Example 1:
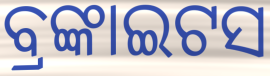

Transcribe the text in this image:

ବ୍ରଙ୍କାଇଟସ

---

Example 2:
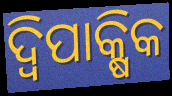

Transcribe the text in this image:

ଦ୍ୱିପାକ୍ଷିକ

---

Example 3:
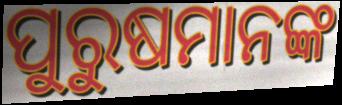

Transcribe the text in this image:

ପୁରୁଷମାନଙ୍କ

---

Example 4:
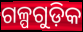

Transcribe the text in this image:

ଗଳ୍ପଗୁଡ଼ିକ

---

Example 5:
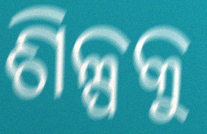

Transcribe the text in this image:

ଶିଳ୍ପକୁ